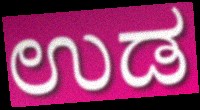
ಉಡ